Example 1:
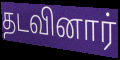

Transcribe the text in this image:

தடவினார்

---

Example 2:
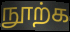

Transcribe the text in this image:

நூற்க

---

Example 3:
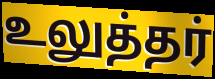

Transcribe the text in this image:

உலுத்தர்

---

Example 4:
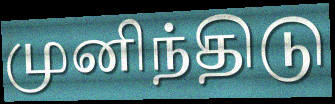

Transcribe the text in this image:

முனிந்திடு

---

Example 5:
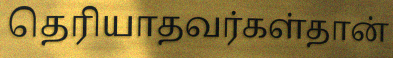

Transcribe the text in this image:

தெரியாதவர்கள்தான்